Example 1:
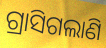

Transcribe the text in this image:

ଗ୍ରାସିଗଲାଣି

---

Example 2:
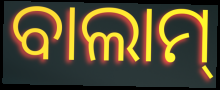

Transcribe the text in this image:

ବାଲାମ୍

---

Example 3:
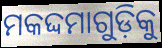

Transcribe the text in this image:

ମକଦ୍ଦମାଗୁଡ଼ିକୁ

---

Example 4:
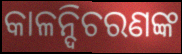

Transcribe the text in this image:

କାଳନ୍ଦିଚରଣଙ୍କ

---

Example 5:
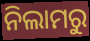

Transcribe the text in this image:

ନିଲାମରୁ